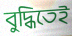
বুদ্ধিতেই